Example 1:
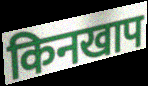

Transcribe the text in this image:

किनखाप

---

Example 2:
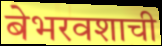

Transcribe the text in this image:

बेभरवशाची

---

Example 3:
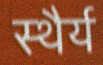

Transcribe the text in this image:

स्थैर्य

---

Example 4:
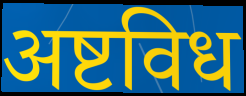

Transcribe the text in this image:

अष्टविध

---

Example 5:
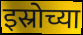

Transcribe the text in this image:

इस्रोच्या